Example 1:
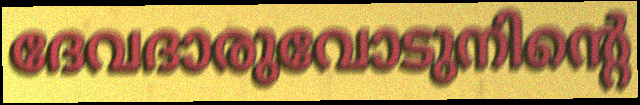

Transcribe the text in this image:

ദേവദാരുവോടുനിന്റെ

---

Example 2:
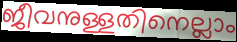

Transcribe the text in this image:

ജീവനുള്ളതിനെല്ലാം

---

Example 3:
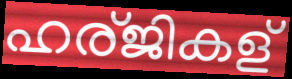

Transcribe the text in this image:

ഹര്ജികള്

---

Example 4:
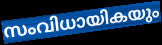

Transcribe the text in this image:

സംവിധായികയും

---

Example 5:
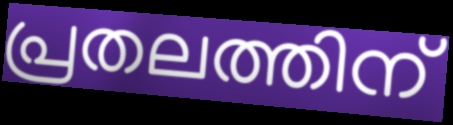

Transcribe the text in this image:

പ്രതലത്തിന്